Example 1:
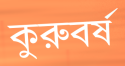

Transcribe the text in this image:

কুরুবর্ষ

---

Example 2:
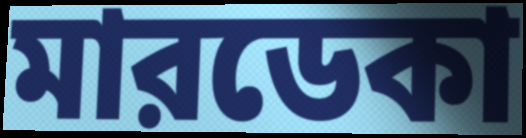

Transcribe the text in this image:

মারডেকা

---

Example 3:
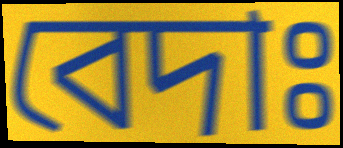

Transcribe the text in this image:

বেদাঃ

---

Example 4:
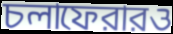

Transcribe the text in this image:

চলাফেরারও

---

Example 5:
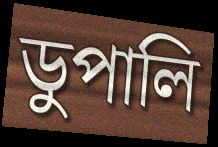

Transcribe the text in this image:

ডুপালি